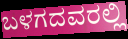
ಬಳಗದವರಲ್ಲಿ